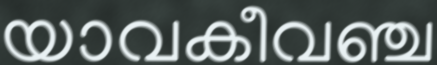
യാവകീവഞ്ച